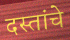
दस्तांचे